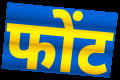
फोंट